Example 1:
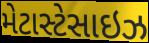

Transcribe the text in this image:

મેટાસ્ટેસાઇઝ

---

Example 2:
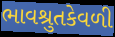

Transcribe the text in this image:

ભાવશ્રુતકેવળી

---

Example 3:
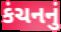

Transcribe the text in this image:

કંચનનું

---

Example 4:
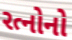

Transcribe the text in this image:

રત્નોનો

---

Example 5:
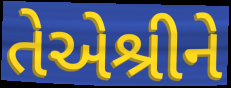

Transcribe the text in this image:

તેએશ્રીને